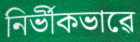
নিৰ্ভীকভাৱে